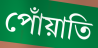
পোঁয়াতি